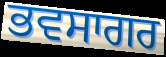
ਭਵਸਾਗਰ